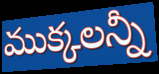
ముక్కలన్నీ